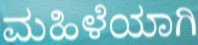
ಮಹಿಳೆಯಾಗಿ